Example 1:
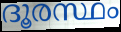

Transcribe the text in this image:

ദൂരസ്ഥം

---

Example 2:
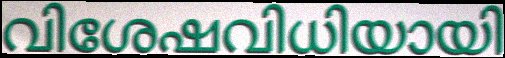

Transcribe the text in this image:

വിശേഷവിധിയായി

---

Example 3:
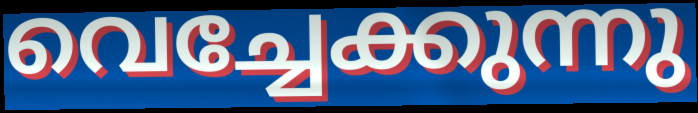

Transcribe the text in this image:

വെച്ചേക്കുന്നു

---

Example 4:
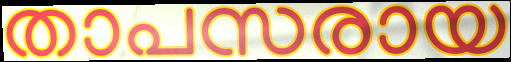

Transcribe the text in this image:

താപസരായ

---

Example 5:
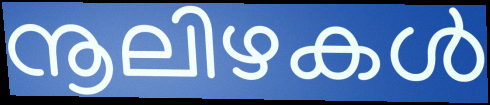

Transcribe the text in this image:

നൂലിഴകൾ